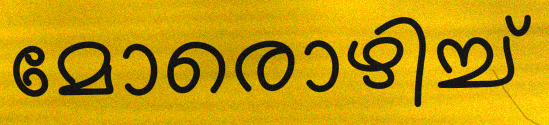
മോരൊഴിച്ച്